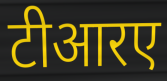
टीआरए